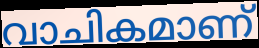
വാചികമാണ്